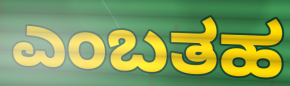
ಎಂಬತಹ